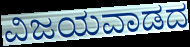
ವಿಜಯವಾಡದ